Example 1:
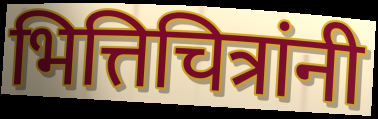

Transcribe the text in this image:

भित्तिचित्रांनी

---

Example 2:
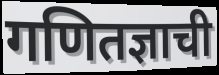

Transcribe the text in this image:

गणितज्ञाची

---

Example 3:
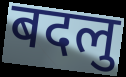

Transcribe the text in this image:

बदलु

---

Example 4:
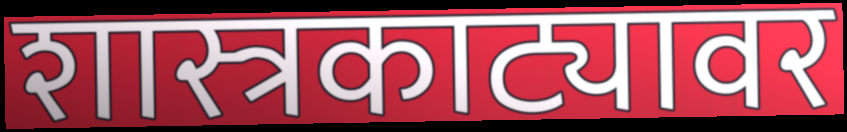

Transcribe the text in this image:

शास्त्रकाट्यावर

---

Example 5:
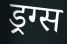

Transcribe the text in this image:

ड्रग्स